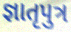
જ્ઞાતૃપુત્ર